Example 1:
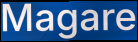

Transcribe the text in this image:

Magare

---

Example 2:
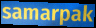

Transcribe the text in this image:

samarpak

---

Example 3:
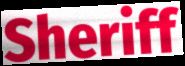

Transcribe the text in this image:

Sheriff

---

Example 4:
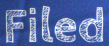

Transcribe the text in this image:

Filed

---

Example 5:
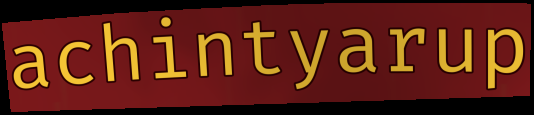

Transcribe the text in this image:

achintyarup